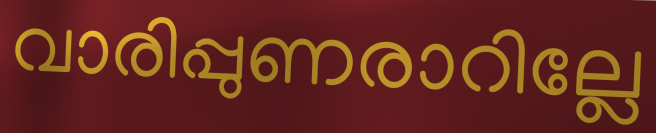
വാരിപ്പുണരാറില്ലേ